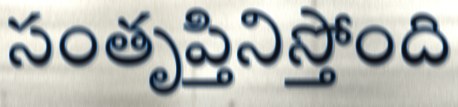
సంతృప్తినిస్తోంది